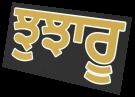
ਝੁਝਾਰੂ